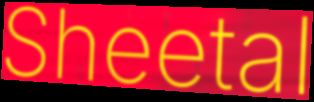
Sheetal